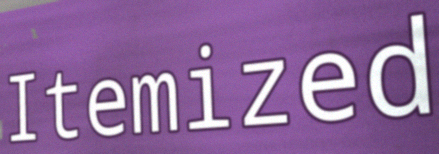
Itemized